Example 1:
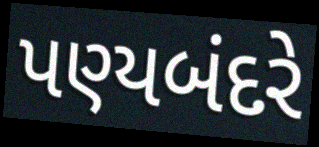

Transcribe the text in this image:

પણ્યબંદરે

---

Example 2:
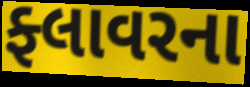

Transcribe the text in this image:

ફ્લાવરના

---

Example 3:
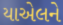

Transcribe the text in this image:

યાએલને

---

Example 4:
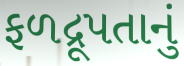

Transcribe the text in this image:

ફળદ્રૂપતાનું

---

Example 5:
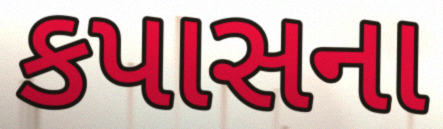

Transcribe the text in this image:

કપાસના